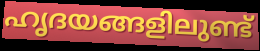
ഹൃദയങ്ങളിലുണ്ട്